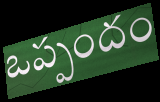
ఒప్పందం